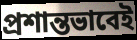
প্রশান্তভাবেই